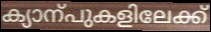
ക്യാന്പുകളിലേക്ക്